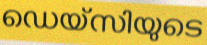
ഡെയ്സിയുടെ